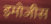
इमोजीस